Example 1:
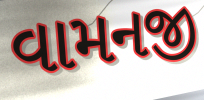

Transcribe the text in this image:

વામનજી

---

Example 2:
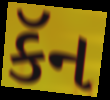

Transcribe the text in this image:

કૅન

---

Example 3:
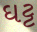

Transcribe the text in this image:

ઘટ્ટ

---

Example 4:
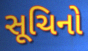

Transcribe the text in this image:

સૂચિનો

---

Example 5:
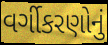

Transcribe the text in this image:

વર્ગીકરણોનું